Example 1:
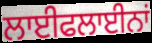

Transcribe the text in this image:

ਲਾਈਫਲਾਈਨਾਂ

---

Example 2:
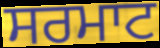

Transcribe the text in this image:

ਸਰਮਾਟ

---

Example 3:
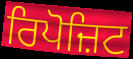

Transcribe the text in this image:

ਰਿਪੋਜ਼ਿਟ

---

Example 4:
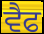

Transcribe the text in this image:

ਵੈਫ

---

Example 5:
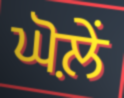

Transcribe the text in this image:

ਘੋਲ਼ੇਂ